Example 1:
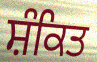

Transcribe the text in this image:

ਸ਼ੰਕਿਤ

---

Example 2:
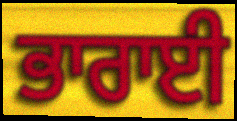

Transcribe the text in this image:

ਭਾਰਾਈ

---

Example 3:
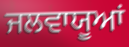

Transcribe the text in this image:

ਜਲਵਾਯੂਆਂ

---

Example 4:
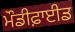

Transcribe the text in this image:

ਮੌਡੀਫ਼ਾਈਡ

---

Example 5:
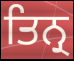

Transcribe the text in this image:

ਤਿਨ੍ਰ